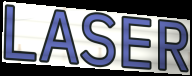
LASER